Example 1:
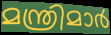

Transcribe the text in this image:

മന്ത്രിമാർ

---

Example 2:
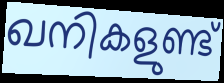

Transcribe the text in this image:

ഖനികളുണ്ട്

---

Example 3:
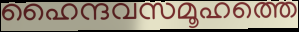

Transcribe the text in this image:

ഹൈന്ദവസമൂഹത്തെ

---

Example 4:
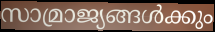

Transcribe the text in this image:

സാമ്രാജ്യങ്ങൾക്കും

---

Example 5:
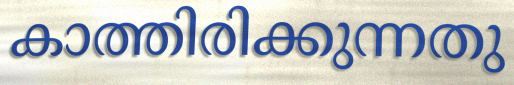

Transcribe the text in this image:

കാത്തിരിക്കുന്നതു